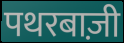
पथरबाज़ी